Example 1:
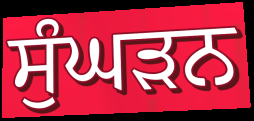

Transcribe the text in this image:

ਸੁੰਘੜਨ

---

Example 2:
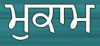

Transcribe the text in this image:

ਮੁਕਾਮ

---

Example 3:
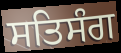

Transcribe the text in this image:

ਸਤਿਸੰਗ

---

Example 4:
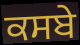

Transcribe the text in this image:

ਕਸਬੇ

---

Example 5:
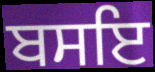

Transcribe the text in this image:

ਬਸਇ